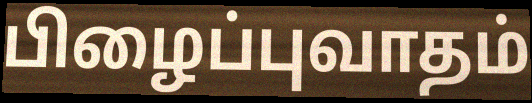
பிழைப்புவாதம்